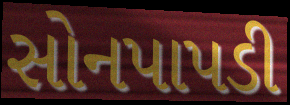
સોનપાપડી